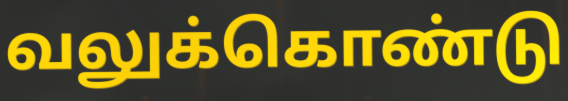
வலுக்கொண்டு